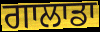
ਗਾਲਾਡਾ